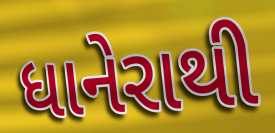
ધાનેરાથી